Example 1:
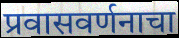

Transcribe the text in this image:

प्रवासवर्णनाचा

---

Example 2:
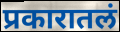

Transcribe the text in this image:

प्रकारातलं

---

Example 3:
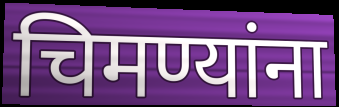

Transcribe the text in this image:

चिमण्यांना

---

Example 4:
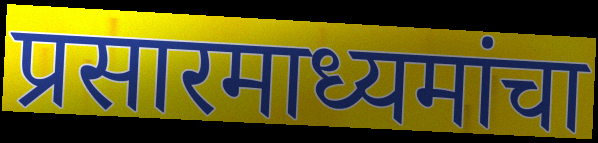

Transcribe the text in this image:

प्रसारमाध्यमांचा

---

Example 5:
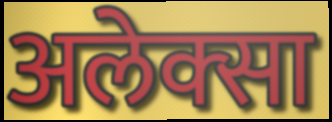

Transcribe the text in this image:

अलेक्‍सा